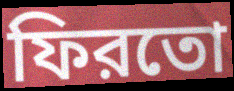
ফিরতো